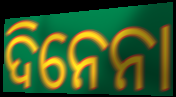
ଦିନେନା